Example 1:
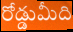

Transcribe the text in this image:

రోడ్డుమీది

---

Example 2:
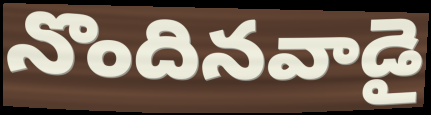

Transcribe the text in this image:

నొందినవాడై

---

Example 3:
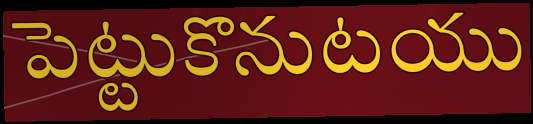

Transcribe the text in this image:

పెట్టుకొనుటయు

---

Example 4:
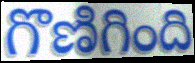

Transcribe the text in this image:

గొణిగింది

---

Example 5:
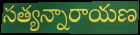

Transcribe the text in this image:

సత్యన్నారాయణ